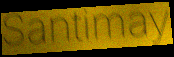
Santimay